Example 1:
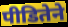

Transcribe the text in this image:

पीडितेने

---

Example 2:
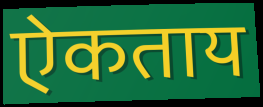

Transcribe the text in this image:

ऐकताय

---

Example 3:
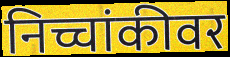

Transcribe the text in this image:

निच्चांकीवर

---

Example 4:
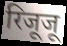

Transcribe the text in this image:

रिजूजू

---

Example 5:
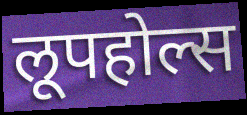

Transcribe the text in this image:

लूपहोल्स